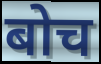
बोच